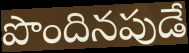
పొందినపుడే